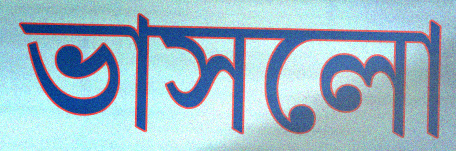
ভাসলো